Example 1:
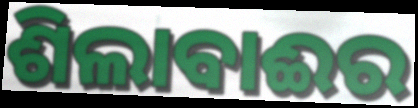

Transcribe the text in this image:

ଶିଲାବାଈର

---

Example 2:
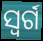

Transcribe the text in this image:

ସ୍ବର୍ଗ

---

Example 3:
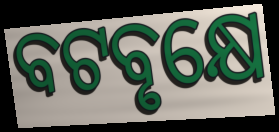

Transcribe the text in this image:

ବଟବୃକ୍ଷେ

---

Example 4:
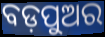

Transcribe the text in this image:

ବଡ଼ପୁଅର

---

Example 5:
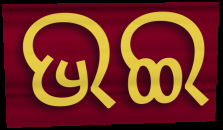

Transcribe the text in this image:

ଭଇ